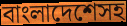
বাংলাদেশেসহ